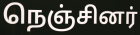
நெஞ்சினர்